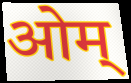
ओम्